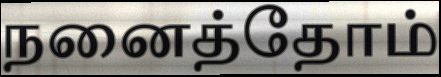
நனைத்தோம்